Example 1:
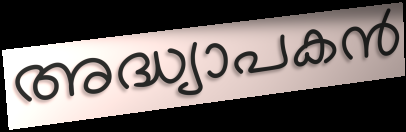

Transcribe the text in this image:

അദ്ധ്യാപകൻ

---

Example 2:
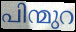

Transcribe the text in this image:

പിന്മുറ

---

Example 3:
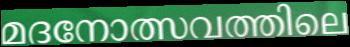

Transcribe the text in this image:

മദനോത്സവത്തിലെ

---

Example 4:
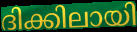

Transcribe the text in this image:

ദിക്കിലായി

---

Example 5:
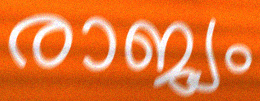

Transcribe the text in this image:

രാജ്യം